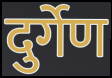
दुर्गेण